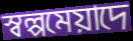
স্বল্পমেয়াদে